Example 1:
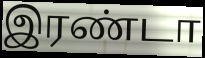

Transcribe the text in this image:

இரண்டா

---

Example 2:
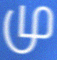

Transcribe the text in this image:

மு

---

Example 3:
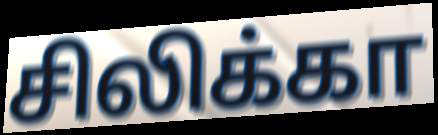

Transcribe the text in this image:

சிலிக்கா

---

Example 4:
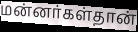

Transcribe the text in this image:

மன்னர்கள்தான்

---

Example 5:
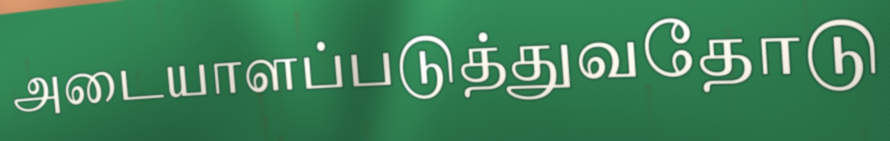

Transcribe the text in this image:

அடையாளப்படுத்துவதோடு